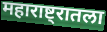
महाराष्ट्रातला